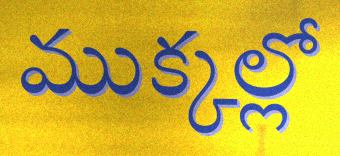
ముక్కల్లో